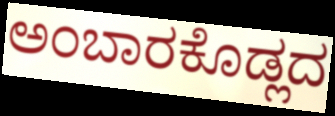
ಅಂಬಾರಕೊಡ್ಲದ